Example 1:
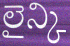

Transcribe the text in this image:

లైన్కి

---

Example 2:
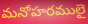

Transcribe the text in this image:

మనోహరములై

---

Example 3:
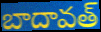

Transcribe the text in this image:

బాదావత్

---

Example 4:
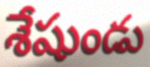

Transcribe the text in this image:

శేషుండు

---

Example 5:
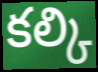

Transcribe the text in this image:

కల్కి